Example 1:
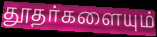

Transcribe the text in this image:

தூதர்களையும்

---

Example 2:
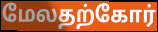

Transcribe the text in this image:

மேலதற்கோர்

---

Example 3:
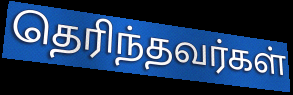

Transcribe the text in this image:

தெரிந்தவர்கள்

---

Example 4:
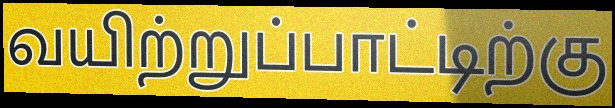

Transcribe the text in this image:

வயிற்றுப்பாட்டிற்கு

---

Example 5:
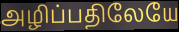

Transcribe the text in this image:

அழிப்பதிலேயே